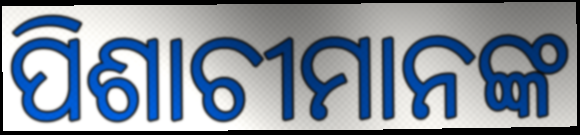
ପିଶାଚୀମାନଙ୍କ